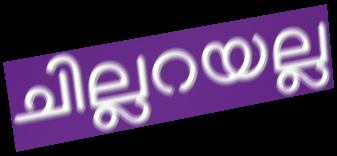
ചില്ലറയല്ല